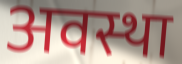
अवस्था